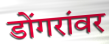
डोंगरांवर